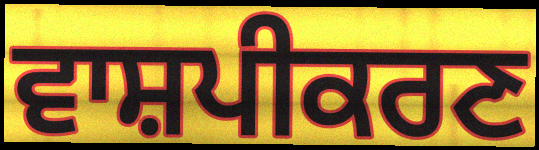
ਵਾਸ਼ਪੀਕਰਣ